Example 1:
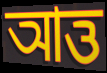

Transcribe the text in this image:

আত্ত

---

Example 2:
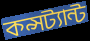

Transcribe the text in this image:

কন্সট্যান্ট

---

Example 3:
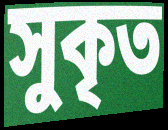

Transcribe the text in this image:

সুকৃত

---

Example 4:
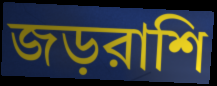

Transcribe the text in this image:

জড়রাশি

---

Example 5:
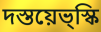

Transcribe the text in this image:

দস্তয়েভ্স্কি